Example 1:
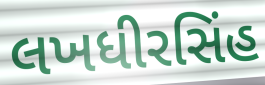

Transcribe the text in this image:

લખધીરસિંહ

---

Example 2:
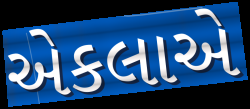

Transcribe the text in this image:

એકલાએ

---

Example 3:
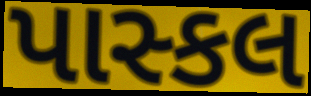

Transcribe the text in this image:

પાસ્કલ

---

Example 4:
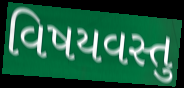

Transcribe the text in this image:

વિષયવસ્તુ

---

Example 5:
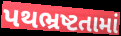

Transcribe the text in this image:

પથભ્રષ્ટતામાં